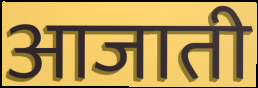
आजाती